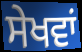
ਸੇਖਵਾਂ